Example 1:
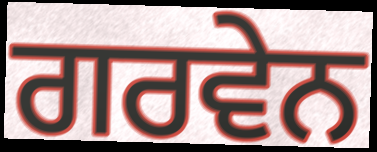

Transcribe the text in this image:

ਗਰਵੇਨ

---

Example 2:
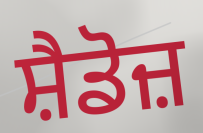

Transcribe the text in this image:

ਸ਼ੈਡੋਜ਼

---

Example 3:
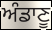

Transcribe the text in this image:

ਅੰਡਾਣੂ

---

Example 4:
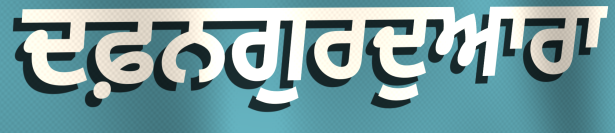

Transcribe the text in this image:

ਦਫ਼ਨਗੁਰਦੁਆਰਾ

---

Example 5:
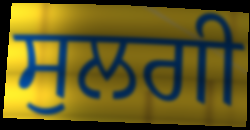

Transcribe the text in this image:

ਸੁਲਗੀ